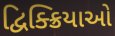
દ્વિક્ક્રિયાઓ